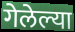
गेलेल्या